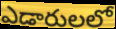
ఎడారులలో